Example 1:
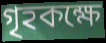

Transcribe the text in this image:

গৃহকক্ষে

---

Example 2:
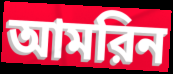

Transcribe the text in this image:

আমরিন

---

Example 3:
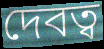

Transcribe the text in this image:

দেবত্ব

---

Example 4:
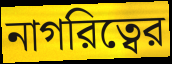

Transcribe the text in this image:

নাগরিত্বের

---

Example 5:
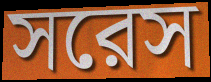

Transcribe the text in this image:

সরেস